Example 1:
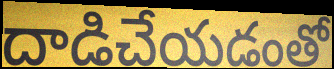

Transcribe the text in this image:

దాడిచేయడంతో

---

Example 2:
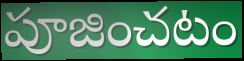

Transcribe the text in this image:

పూజించటం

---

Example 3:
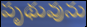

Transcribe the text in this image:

పృథువును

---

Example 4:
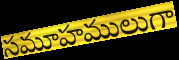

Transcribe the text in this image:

సమూహములుగా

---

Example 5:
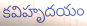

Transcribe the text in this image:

కవిహృదయం